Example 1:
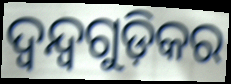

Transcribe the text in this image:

ଦ୍ୱନ୍ଦ୍ୱଗୁଡ଼ିକର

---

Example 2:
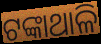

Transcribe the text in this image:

ଟଙ୍କାଥାଳି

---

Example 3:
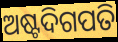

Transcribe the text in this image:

ଅଷ୍ଟଦିଗପତି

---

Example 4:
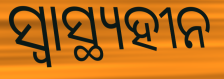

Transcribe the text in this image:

ସ୍ୱାସ୍ଥ୍ୟହୀନ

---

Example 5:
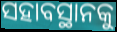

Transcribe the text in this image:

ସହାବସ୍ଥାନକୁ